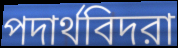
পদার্থবিদরা